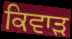
ਕਿਵਾੜ